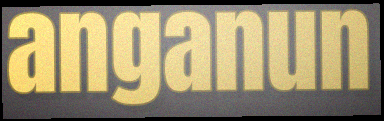
anganun